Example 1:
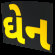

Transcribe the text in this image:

ઘેન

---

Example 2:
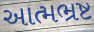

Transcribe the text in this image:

આત્મભ્રષ્ટ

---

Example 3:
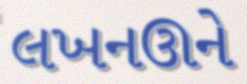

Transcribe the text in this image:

લખનઊને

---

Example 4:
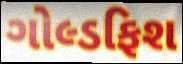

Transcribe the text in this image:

ગોલ્ડફિશ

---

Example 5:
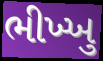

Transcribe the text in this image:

ભીખ્ખુ